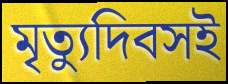
মৃত্যুদিবসই